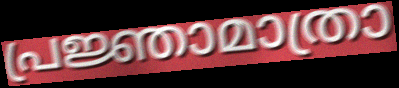
പ്രജ്ഞാമാത്രാ